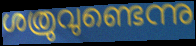
ശത്രുവുണ്ടെന്നു